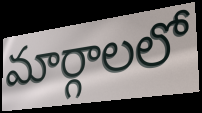
మార్గాలలో